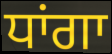
ਧਾਂਗਾ